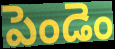
పెండెం